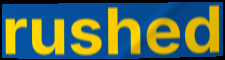
rushed